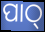
ପାଠ୍